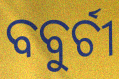
ବବୁର୍ଚୀ